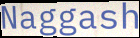
Naggash